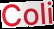
Coli